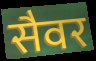
सैवर